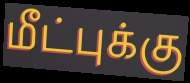
மீட்புக்கு